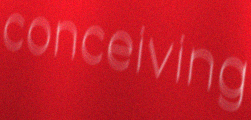
conceiving